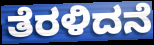
ತೆರಳಿದನೆ